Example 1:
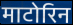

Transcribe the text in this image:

माटोरिन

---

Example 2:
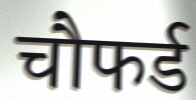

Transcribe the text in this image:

चौफर्ड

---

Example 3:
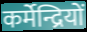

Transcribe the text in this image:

कर्मेन्द्रियों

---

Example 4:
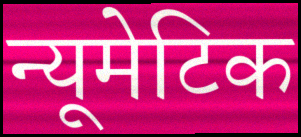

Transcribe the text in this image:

न्यूमेटिक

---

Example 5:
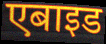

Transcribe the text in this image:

एबाइड